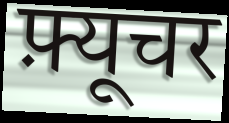
फ़्यूचर